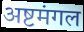
अष्टमंगल